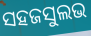
ସହଜସୁଲଭ